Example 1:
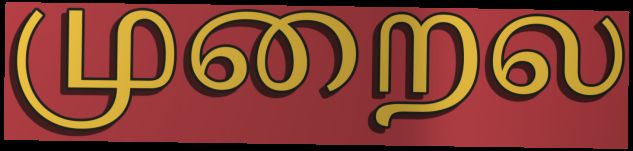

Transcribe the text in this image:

முறைல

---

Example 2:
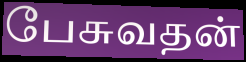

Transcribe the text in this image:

பேசுவதன்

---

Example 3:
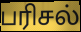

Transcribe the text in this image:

பரிசல்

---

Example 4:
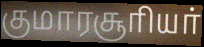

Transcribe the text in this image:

குமாரசூரியர்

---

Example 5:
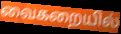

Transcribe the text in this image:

வைகறையில்